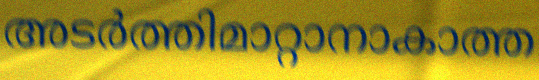
അടർത്തിമാറ്റാനാകാത്ത